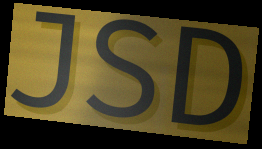
JSD